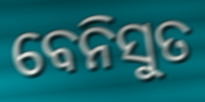
ବେନିସୁତ